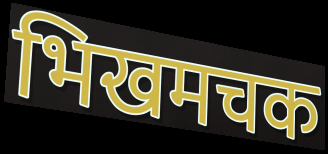
भिखमचक